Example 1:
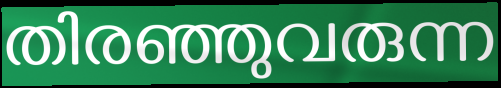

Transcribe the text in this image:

തിരഞ്ഞുവരുന്ന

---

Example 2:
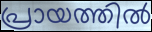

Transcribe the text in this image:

പ്രായത്തിൽ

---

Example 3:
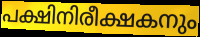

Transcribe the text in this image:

പക്ഷിനിരീക്ഷകനും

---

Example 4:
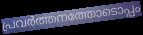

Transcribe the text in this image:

പ്രവർത്തനത്തോടൊപ്പം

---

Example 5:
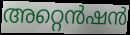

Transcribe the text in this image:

അറ്റെൻഷൻ